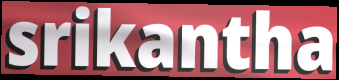
srikantha